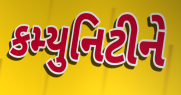
કમ્યુનિટીને